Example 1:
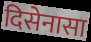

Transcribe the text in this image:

दिसेनासा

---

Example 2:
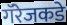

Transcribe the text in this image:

गॅरेजकडे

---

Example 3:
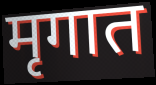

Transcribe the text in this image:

मृगात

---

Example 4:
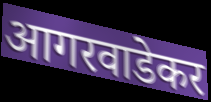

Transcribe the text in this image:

आगरवाडेकर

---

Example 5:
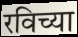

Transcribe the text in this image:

रविच्या